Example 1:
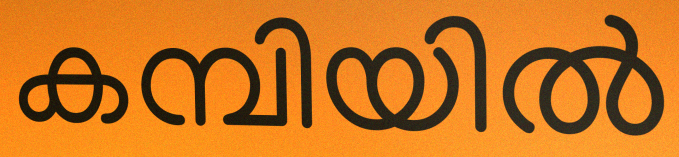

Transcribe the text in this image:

കമ്പിയിൽ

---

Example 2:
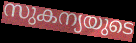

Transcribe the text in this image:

സുകന്യയുടെ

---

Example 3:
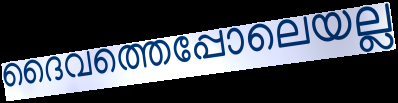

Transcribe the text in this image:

ദൈവത്തെപ്പോലെയല്ല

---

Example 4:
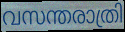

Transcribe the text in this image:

വസന്തരാത്രി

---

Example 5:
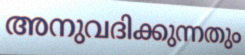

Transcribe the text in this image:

അനുവദിക്കുന്നതും